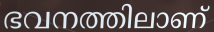
ഭവനത്തിലാണ്